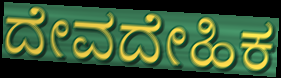
ದೇವದೇಹಿಕ